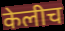
केलीच